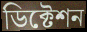
ডিক্টেশন